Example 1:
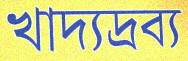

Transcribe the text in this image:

খাদ্যদ্রব্য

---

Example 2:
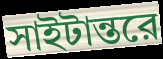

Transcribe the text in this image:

সাইটান্তরে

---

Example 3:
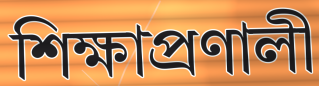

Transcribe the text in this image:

শিক্ষাপ্রণালী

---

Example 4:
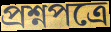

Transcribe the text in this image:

প্রশ্নপত্রে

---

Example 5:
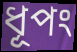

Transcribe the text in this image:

ধূপং